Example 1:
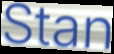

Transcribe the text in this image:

Stan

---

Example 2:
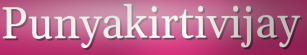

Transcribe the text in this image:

Punyakirtivijay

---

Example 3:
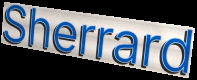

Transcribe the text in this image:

Sherrard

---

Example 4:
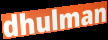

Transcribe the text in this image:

dhulman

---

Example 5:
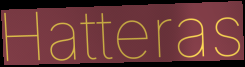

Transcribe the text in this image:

Hatteras